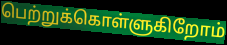
பெற்றுக்கொள்ளுகிறோம்